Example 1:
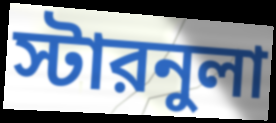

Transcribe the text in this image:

স্টারনুলা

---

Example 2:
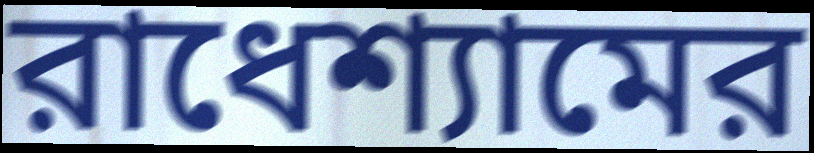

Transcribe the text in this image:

রাধেশ্যামের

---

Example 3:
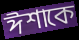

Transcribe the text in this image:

ঈশাকে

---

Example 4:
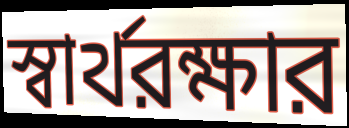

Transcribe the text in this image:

স্বার্থরক্ষার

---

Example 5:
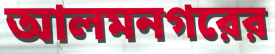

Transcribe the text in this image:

আলমনগরের